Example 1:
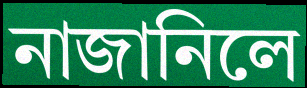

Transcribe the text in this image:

নাজানিলে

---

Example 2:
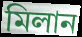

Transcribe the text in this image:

মিলান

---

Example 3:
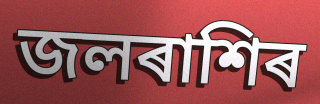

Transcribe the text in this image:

জলৰাশিৰ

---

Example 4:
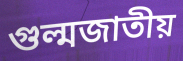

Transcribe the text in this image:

গুল্মজাতীয়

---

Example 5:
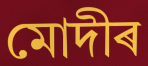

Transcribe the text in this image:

মোদীৰ